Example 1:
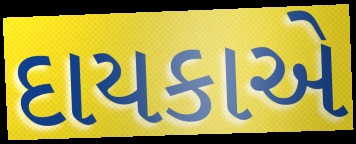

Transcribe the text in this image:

દાયકાએ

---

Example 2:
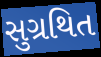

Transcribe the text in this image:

સુગ્રથિત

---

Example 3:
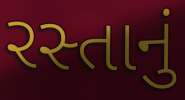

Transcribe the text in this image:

રસ્તાનું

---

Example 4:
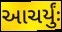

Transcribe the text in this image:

આચર્યુંઃ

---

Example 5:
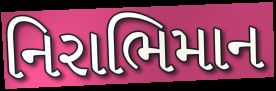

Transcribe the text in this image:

નિરાભિમાન